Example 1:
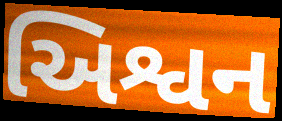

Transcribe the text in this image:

અિશ્વન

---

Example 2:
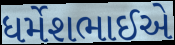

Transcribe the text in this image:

ધર્મેશભાઈએ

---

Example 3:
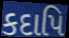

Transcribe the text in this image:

કદાપિ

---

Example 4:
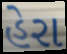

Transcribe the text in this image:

હેરા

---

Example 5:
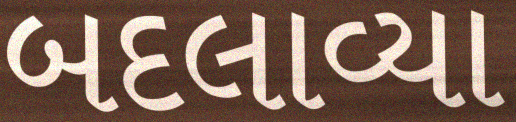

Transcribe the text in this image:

બદલાવ્યા